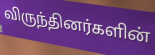
விருந்தினர்களின்